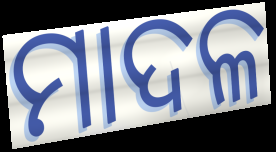
ମାଦଳ